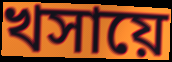
খসায়ে